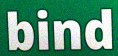
bind